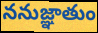
ననుజ్ఞాతుం